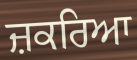
ਜ਼ਕਰਿਆ